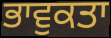
ਭਾਵੁਕਤਾ